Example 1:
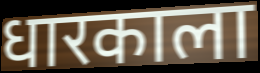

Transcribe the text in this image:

धारकाला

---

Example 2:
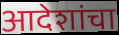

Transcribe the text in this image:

आदेशांचा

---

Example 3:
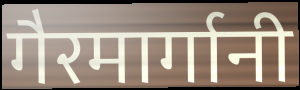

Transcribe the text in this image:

गैरमार्गानी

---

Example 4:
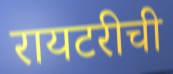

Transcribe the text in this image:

रायटरीची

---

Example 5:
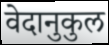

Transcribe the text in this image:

वेदानुकुल